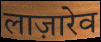
लाज़ारेव